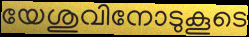
യേശുവിനോടുകൂടെ